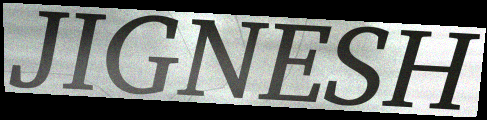
JIGNESH